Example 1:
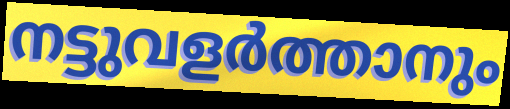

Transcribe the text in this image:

നട്ടുവളർത്താനും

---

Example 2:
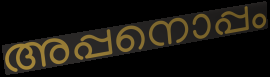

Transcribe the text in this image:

അപ്പനൊപ്പം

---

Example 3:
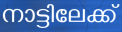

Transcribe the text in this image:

നാട്ടിലേക്ക്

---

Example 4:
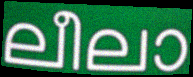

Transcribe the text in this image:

ലീലാ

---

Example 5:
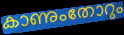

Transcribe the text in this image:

കാണുംതോറും